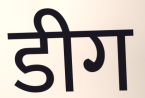
डीग